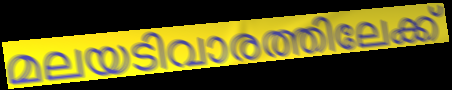
മലയടിവാരത്തിലേക്ക്